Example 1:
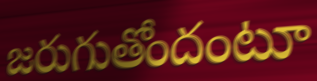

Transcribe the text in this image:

జరుగుతోందంటూ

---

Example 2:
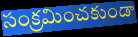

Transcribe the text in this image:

సంక్రమించకుండా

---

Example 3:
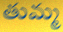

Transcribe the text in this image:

తుమ్మ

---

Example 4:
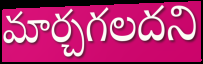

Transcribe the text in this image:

మార్చగలదని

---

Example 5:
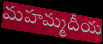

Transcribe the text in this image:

మహమ్మదీయ